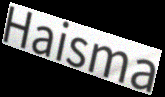
Haisma